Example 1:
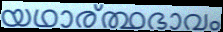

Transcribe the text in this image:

യഥാര്ത്ഥഭാവം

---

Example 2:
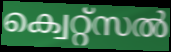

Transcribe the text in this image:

ക്വെറ്റ്സൽ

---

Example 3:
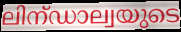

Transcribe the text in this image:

ലിന്ഡാല്വയുടെ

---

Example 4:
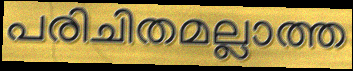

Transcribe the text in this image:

പരിചിതമല്ലാത്ത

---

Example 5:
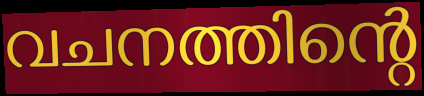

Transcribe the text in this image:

വചനത്തിന്റെ